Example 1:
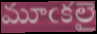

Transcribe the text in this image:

మూఁకలై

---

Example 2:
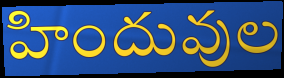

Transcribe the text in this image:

హిందువుల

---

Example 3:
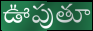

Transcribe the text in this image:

ఊపుతూ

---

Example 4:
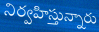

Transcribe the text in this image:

నిర్వహిస్తున్నారు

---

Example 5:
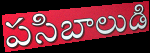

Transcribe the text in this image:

పసిబాలుడి